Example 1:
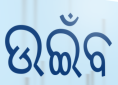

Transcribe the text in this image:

ଉଇଁବ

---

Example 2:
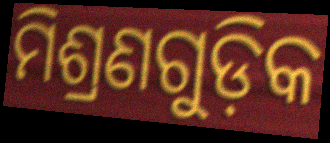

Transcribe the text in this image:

ମିଶ୍ରଣଗୁଡ଼ିକ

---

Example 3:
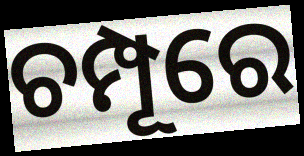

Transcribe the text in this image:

ଚମ୍ପୂରେ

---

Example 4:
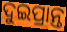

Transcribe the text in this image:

ଦୁଇପ୍ରାନ୍ତ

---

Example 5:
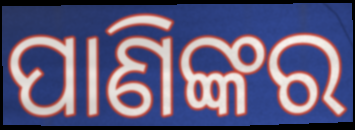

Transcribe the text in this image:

ପାଣିଙ୍କର